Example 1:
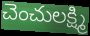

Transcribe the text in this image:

చెంచులక్ష్మి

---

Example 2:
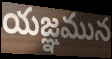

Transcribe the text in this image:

యజ్ఞమున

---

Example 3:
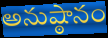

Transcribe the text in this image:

అనుష్ఠానం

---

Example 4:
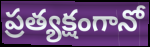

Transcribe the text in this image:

ప్రత్యక్షంగానో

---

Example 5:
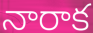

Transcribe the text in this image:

నారాక